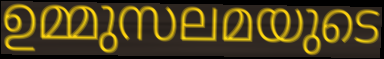
ഉമ്മുസലമയുടെ